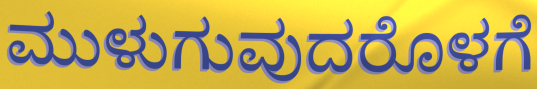
ಮುಳುಗುವುದರೊಳಗೆ